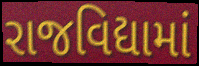
રાજવિદ્યામાં